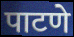
पाटणे